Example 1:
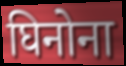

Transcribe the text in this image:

घिनोना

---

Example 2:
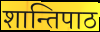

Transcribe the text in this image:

शान्तिपाठ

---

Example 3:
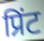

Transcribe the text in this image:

प्रिंट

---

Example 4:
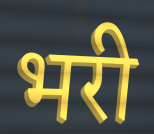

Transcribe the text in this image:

भरी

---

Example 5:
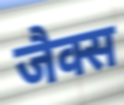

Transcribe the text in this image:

जैक्स